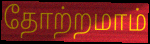
தோற்றமாம்